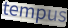
tempus